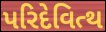
પરિદેવિત્થ